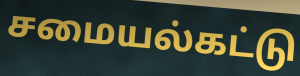
சமையல்கட்டு